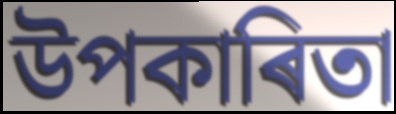
উপকাৰিতা